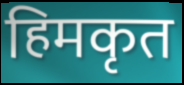
हिमकृत